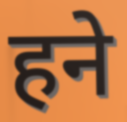
हने